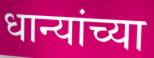
धान्यांच्या